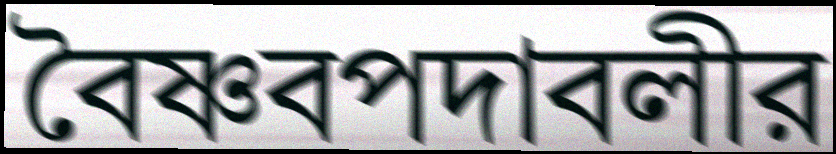
বৈষ্ণবপদাবলীর